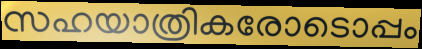
സഹയാത്രികരോടൊപ്പം